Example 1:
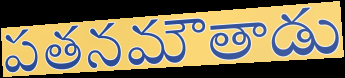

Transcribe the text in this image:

పతనమౌతాడు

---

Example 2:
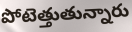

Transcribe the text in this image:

పోటెత్తుతున్నారు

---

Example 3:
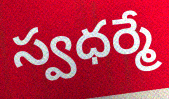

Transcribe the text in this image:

స్వధర్మే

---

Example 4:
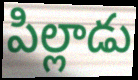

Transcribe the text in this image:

పిల్లాడు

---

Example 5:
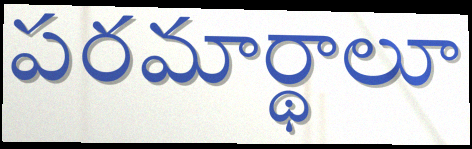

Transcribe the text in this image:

పరమార్థాలూ